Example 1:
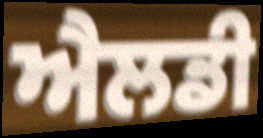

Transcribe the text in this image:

ਐਲਡੀ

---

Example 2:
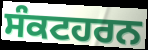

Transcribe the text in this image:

ਸੰਕਟਹਰਨ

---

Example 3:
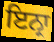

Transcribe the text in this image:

ਇਨ੍ਰਾ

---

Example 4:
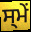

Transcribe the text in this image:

ਸ੍ਮੇਂ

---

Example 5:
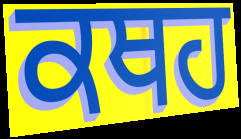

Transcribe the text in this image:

ਕਥਹ